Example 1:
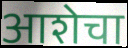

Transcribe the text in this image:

आशेचा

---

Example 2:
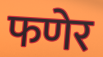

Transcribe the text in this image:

फणेर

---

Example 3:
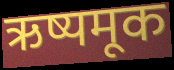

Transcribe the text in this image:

ऋष्यमूक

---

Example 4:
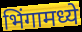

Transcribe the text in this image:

भिंगामध्ये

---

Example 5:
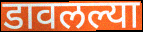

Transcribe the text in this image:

डावलल्या